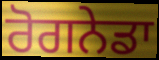
ਰੋਗਨੇਡਾ